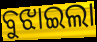
ବୁଝାଇଲା